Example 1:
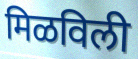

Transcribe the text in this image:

मिळविली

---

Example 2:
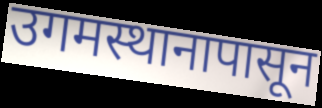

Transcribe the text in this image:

उगमस्थानापासून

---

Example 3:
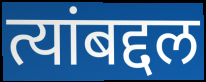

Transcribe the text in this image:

त्यांबद्दल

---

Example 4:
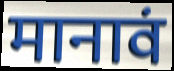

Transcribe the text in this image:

मानावं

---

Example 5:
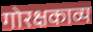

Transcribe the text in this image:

गोरक्षकाव्य